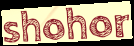
shohor